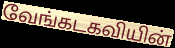
வேங்கடகவியின்